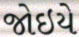
જોઇયે